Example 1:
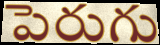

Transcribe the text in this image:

పెరుగు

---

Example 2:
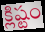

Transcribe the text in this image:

క్లిష్టం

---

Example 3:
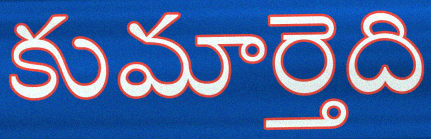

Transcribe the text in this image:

కుమార్తెది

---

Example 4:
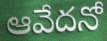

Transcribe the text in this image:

ఆవేదనో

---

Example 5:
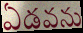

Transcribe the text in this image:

ఏడవను